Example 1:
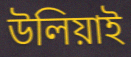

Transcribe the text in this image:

উলিয়াই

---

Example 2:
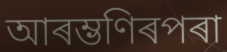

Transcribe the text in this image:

আৰম্ভণিৰপৰা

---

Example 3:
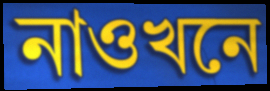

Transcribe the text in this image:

নাওখনে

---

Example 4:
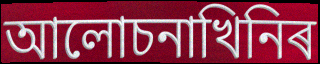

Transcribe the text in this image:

আলোচনাখিনিৰ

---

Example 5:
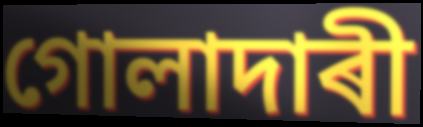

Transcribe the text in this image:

গোলাদাৰী